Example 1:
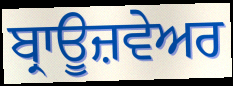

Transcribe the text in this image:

ਬ੍ਰਾਊਜ਼ਵੇਅਰ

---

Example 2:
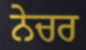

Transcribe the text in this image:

ਨੇਚਰ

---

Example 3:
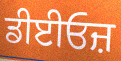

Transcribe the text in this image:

ਡੀਈਓਜ਼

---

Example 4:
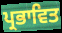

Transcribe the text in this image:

ਪ੍ਰਭਾਵਿਤ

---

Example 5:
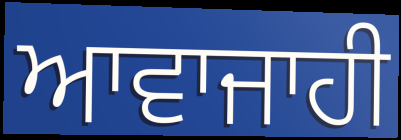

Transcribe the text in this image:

ਆਵਾਜਾਹੀ